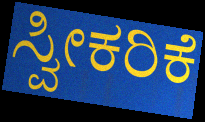
ಸ್ವೀಕರಿಕೆ